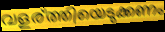
വളര്ത്തിയെടുക്കണം